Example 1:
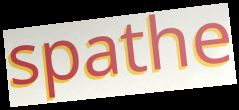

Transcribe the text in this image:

spathe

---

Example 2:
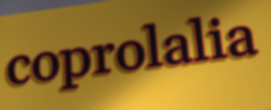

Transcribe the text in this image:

coprolalia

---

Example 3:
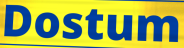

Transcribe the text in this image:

Dostum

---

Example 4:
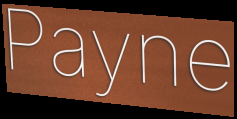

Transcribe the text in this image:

Payne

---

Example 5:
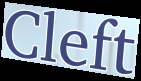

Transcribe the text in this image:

Cleft